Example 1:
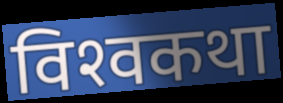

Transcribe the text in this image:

विश्वकथा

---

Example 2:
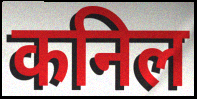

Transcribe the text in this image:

कनिल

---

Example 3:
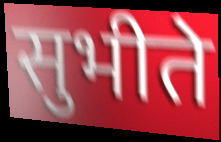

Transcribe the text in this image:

सुभीते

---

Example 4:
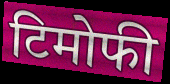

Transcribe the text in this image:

टिमोफी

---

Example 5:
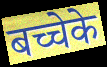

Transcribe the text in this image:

बच्चेके